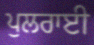
ਪੁਲਰਾਈ